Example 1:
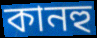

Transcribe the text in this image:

কানহু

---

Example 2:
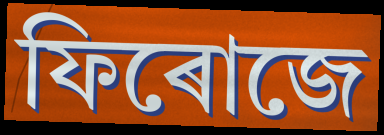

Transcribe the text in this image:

ফিৰোজে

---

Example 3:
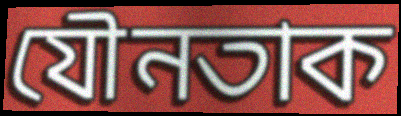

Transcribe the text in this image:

যৌনতাক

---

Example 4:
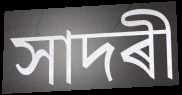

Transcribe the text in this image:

সাদৰী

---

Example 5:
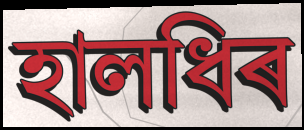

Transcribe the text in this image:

হালধিৰ